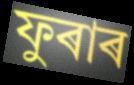
ফুৰাৰ